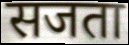
सजता